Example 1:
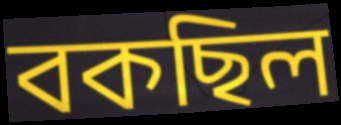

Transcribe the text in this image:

বকছিল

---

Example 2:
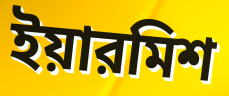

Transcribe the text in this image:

ইয়ারমিশ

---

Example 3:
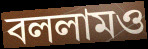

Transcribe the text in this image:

বললামও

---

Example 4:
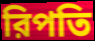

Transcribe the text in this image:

রিপতি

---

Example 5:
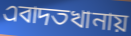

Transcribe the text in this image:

এবাদতখানায়